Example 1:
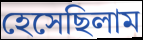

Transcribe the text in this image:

হেসেছিলাম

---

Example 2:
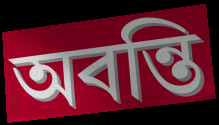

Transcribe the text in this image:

অবন্তি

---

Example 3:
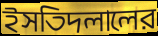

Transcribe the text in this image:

ইসতিদলালের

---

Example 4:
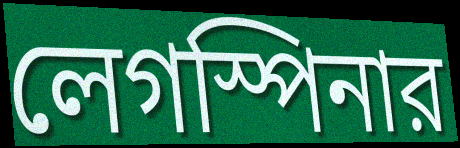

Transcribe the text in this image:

লেগস্পিনার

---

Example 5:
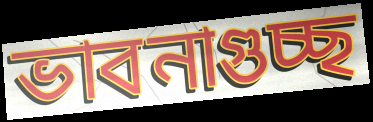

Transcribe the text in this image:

ভাবনাগুচ্ছ